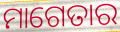
ମାଗେତାର